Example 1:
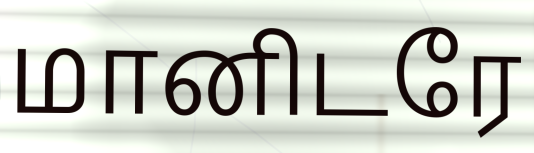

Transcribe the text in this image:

மானிடரே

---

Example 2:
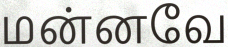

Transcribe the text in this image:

மன்னவே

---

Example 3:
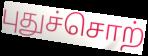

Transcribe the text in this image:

புதுச்சொற்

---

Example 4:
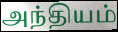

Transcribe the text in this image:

அந்தியம்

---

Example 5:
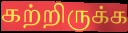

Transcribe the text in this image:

கற்றிருக்க